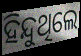
ହିନ୍ଦୁଥିଲେ